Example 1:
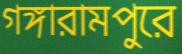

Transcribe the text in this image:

গঙ্গারামপুরে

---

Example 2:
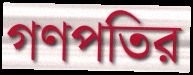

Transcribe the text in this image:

গণপতির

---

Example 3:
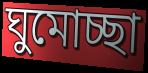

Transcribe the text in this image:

ঘুমোচ্ছা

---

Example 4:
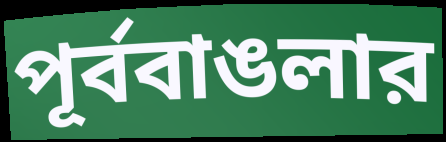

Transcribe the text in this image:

পূর্ববাঙলার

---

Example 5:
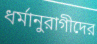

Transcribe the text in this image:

ধর্মানুরাগীদের